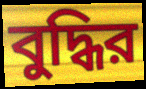
বুদ্ধির